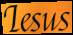
Iesus